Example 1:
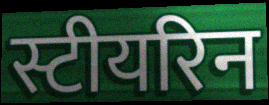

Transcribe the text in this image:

स्टीयरिन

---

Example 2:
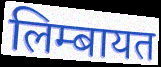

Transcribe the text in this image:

लिम्बायत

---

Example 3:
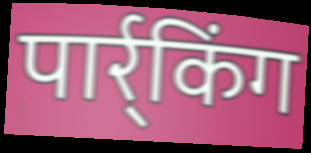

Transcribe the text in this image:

पार्र्किंग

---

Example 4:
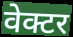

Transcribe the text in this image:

वेक्टर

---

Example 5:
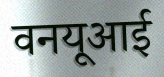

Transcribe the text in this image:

वनयूआई